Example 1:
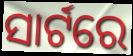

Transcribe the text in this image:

ସାର୍ଟରେ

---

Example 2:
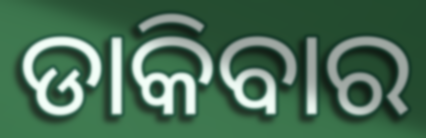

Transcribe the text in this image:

ଡାକିବାର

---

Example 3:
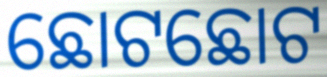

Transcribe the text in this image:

ଛୋଟଛୋଟ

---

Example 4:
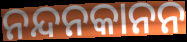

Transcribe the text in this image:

ନନ୍ଦନକାନନ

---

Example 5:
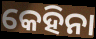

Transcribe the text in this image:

କେହିନା